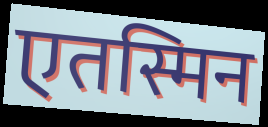
एतस्मिन